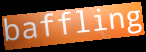
baffling